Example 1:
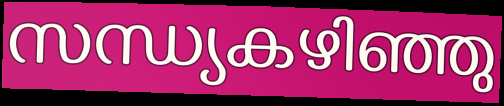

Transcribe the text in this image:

സന്ധ്യകഴിഞ്ഞു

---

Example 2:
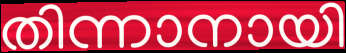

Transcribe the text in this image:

തിന്നാനായി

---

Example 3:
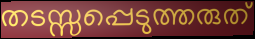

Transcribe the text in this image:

തടസ്സപ്പെടുത്തരുത്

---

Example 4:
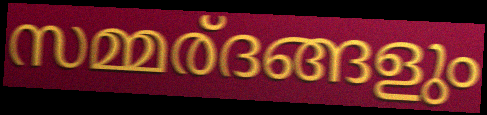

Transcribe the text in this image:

സമ്മര്ദങ്ങളും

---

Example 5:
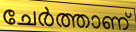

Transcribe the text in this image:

ചേർത്താണ്